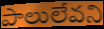
పాలులేవని